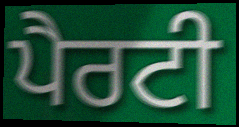
ਪੈਰਟੀ